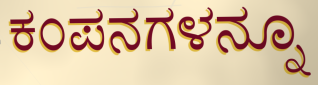
ಕಂಪನಗಳನ್ನೂ